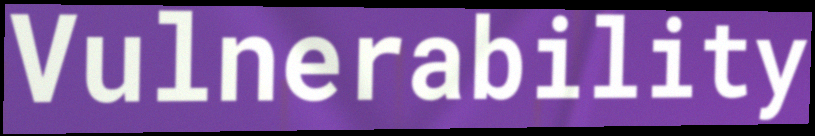
Vulnerability